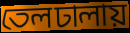
তেলঢালায়